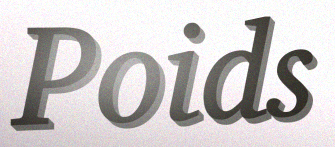
Poids